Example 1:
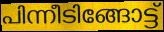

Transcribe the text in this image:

പിന്നീടിങ്ങോട്ട്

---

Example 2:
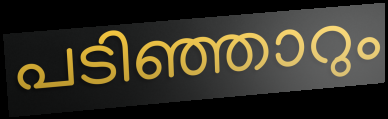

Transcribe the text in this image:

പടിഞ്ഞാറും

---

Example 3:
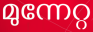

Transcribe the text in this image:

മുന്നേറ്റ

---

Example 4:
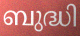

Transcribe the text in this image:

ബുദ്ധി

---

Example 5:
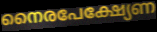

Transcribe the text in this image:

നൈരപേക്ഷ്യേണ